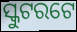
ସ୍କୁଟରଟେ